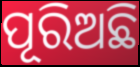
ପୂରିଅଛି